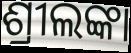
ଶ୍ରୀଲଙ୍କା